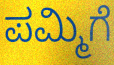
ಪಮ್ಮಿಗೆ